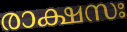
രാക്ഷസഃ